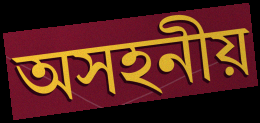
অসহনীয়